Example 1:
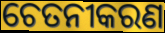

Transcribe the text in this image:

ଚେତନୀକରଣ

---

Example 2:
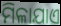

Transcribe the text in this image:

ମିଳାଯାଏ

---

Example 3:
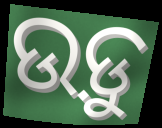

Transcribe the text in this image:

ଉଡ଼ୁ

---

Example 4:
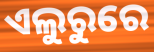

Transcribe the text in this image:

ଏଲୁରୁରେ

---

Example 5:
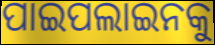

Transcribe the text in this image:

ପାଇପଲାଇନକୁ